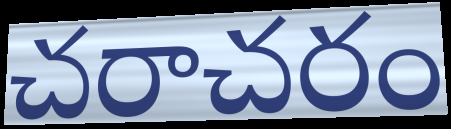
చరాచరం